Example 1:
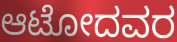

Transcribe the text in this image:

ಆಟೋದವರ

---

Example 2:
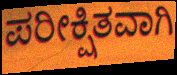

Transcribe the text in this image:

ಪರೀಕ್ಷಿತವಾಗಿ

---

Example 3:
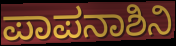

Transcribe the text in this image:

ಪಾಪನಾಶಿನಿ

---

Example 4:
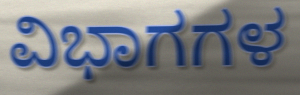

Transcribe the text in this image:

ವಿಭಾಗಗಳ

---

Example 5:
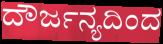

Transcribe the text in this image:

ದೌರ್ಜನ್ಯದಿಂದ